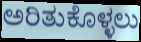
ಅರಿತುಕೊಳ್ಳಲು